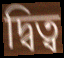
দ্বিত্ব